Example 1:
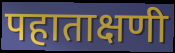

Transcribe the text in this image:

पहाताक्षणी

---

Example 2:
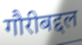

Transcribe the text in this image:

गौरीबद्दल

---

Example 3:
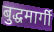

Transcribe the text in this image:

बुद्धमार्गी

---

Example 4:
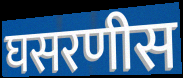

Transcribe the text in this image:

घसरणीस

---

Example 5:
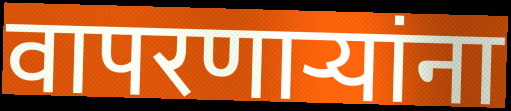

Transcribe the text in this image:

वापरणाऱ्यांना